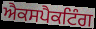
ਐਕਸਪੈਕਟਿੰਗ